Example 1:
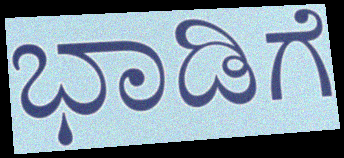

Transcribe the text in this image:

ಭಾಡಿಗೆ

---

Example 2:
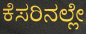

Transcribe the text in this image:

ಕೆಸರಿನಲ್ಲೇ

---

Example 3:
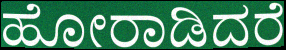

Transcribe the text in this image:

ಹೋರಾಡಿದರೆ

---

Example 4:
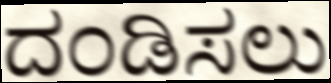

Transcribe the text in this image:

ದಂಡಿಸಲು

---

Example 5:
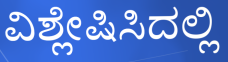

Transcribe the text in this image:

ವಿಶ್ಲೇಷಿಸಿದಲ್ಲಿ